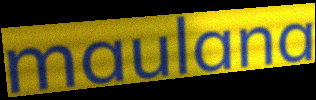
maulana